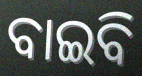
ବାଇବି